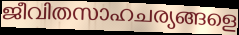
ജീവിതസാഹചര്യങ്ങളെ